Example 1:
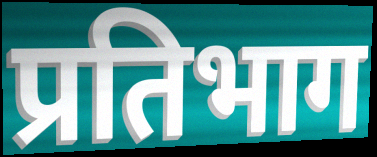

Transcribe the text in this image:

प्रतिभाग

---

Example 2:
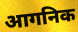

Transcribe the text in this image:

आगनिक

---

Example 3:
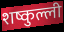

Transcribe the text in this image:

शष्कुल्ली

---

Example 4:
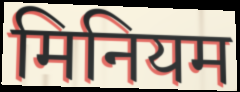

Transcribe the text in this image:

मिनियम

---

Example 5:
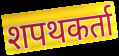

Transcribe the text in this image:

शपथकर्ता